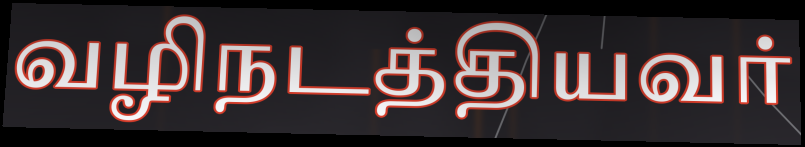
வழிநடத்தியவர்